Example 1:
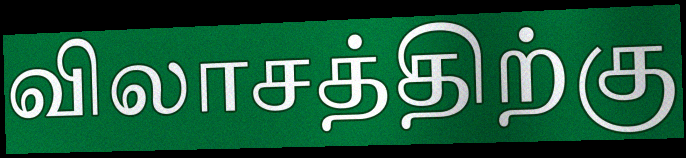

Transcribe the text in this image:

விலாசத்திற்கு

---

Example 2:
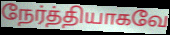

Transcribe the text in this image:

நேர்த்தியாகவே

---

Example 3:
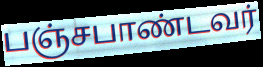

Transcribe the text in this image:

பஞ்சபாண்டவர்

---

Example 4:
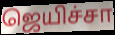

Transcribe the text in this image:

ஜெயிச்சா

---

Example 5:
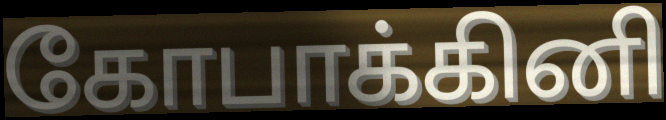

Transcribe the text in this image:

கோபாக்கினி